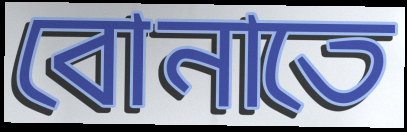
বোনাতে